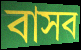
বাসব